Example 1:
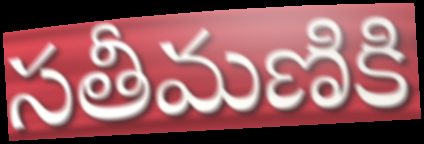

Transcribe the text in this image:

సతీమణికి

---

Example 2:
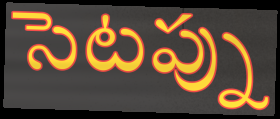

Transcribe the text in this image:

సెటప్ను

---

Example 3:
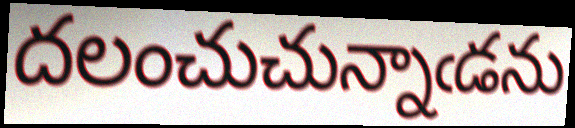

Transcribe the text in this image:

దలంచుచున్నాఁడను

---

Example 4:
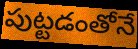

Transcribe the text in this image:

పుట్టడంతోనే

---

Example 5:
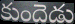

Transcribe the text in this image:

కుందెడు